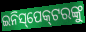
ଇନିସ୍‌ପେକ୍‍ଟରଙ୍କୁ